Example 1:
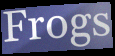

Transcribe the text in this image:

Frogs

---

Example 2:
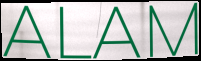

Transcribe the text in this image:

ALAM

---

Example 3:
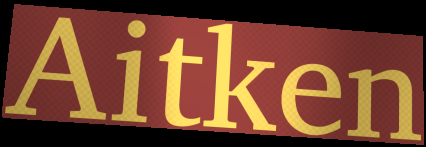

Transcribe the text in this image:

Aitken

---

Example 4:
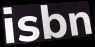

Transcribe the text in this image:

isbn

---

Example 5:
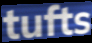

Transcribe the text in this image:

tufts